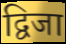
द्विजा